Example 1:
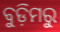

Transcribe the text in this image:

ବୁଡ଼ିମରୁ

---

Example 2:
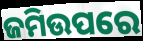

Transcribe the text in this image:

ଜମିଉପରେ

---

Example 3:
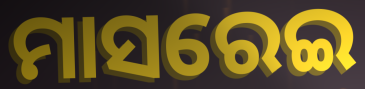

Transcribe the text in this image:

ମାସରେଇ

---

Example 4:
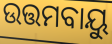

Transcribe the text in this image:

ଉତ୍ତମବାୟୁ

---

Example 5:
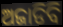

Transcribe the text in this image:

ଅଜାଡିବି